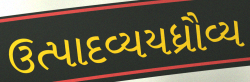
ઉત્પાદવ્યયધ્રૌવ્ય